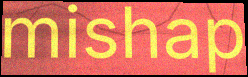
mishap